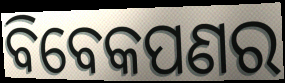
ବିବେକପଣର